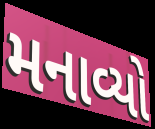
મનાવ્યો